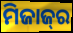
ମିଜାଜ୍‌ର